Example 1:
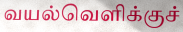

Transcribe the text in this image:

வயல்வெளிக்குச்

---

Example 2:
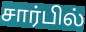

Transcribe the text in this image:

சார்பில்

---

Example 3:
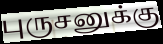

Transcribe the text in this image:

புருசனுக்கு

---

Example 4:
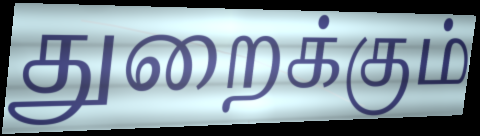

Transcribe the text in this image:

துறைக்கும்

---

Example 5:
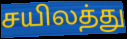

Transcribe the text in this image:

சயிலத்து